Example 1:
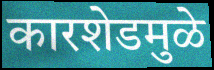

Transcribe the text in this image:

कारशेडमुळे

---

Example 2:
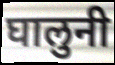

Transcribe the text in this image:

घालुनी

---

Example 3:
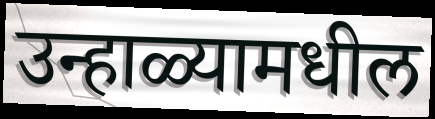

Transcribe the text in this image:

उन्हाळ्यामधील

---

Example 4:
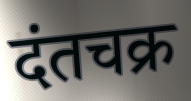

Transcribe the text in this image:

दंतचक्र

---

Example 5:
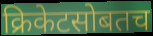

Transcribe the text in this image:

क्रिकेटसोबतच